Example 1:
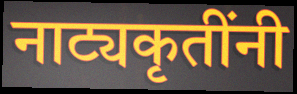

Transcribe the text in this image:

नाट्यकृतींनी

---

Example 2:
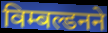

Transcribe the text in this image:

विम्बल्डनने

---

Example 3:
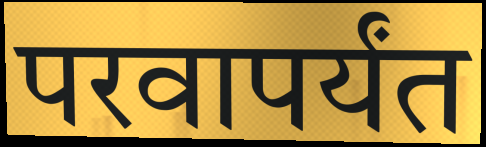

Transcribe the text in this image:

परवापर्यंत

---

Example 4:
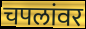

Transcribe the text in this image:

चपलांवर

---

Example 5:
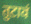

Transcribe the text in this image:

तुटावं